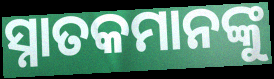
ସ୍ନାତକମାନଙ୍କୁ